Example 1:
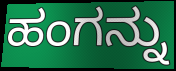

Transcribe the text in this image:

ಹಂಗನ್ನು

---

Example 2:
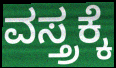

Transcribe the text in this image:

ವಸ್ತ್ರಕ್ಕೆ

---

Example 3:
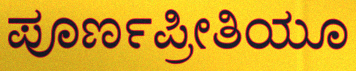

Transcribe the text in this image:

ಪೂರ್ಣಪ್ರೀತಿಯೂ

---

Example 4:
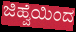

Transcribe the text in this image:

ಜಿಹ್ವೆಯಿಂದ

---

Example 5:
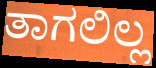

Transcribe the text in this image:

ತಾಗಲಿಲ್ಲ